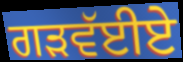
ਗੜਵੱਈਏ